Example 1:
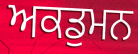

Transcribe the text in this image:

ਅਕਡੁਮਨ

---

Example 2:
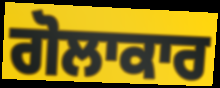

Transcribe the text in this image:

ਗੋਲਾਕਾਰ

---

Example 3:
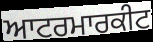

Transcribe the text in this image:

ਆਟਰਮਾਰਕੀਟ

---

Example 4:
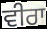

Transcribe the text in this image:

ਵੀਰਾ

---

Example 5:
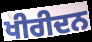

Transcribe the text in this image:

ਖੀਰੀਦਨ